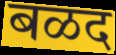
बळद